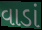
વાડાં